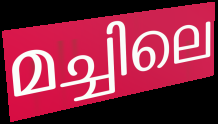
മച്ചിലെ